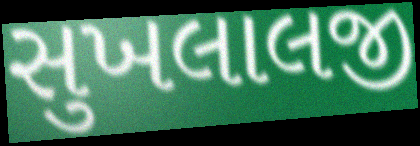
સુખલાલજી